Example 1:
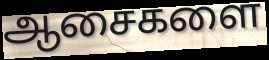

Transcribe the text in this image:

ஆசைகளை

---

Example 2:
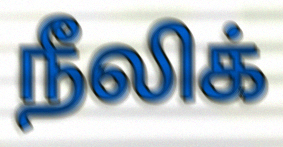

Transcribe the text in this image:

நீலிக்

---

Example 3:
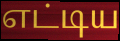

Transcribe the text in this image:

எட்டிய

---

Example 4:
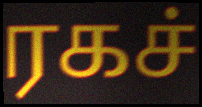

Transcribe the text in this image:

ரகச்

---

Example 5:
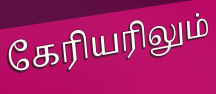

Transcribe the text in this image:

கேரியரிலும்